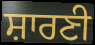
ਸ਼ਾਰਣੀ